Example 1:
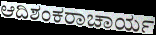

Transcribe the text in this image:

ಆದಿಶಂಕರಾಚಾರ್ಯ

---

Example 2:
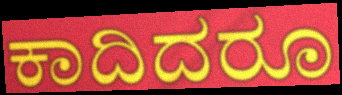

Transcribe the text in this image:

ಕಾದಿದರೂ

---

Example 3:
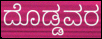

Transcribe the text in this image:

ದೊಡ್ಡವರ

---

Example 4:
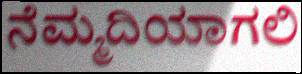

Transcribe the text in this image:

ನೆಮ್ಮದಿಯಾಗಲಿ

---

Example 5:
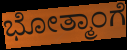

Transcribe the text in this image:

ಭೋತ್ಮಾಂಗೆ